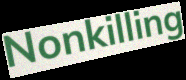
Nonkilling